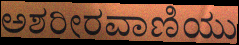
ಅಶರೀರವಾಣಿಯು